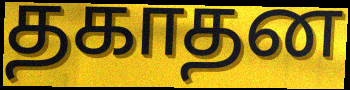
தகாதன